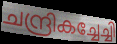
ചന്ദ്രികച്ചേച്ചി